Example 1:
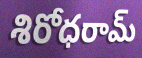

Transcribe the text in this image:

శిరోధరామ్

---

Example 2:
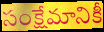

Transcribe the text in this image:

సంక్షేమానికీ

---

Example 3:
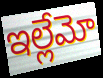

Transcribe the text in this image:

ఇల్లేమో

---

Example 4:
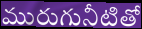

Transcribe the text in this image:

మురుగునీటితో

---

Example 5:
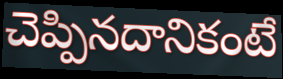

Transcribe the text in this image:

చెప్పినదానికంటే